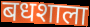
बधशाला